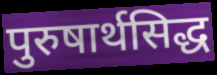
पुरुषार्थसिद्ध